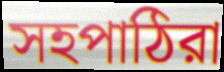
সহপাঠিরা